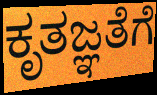
ಕೃತಜ್ಞತೆಗೆ